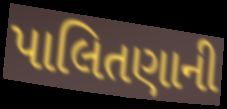
પાલિતણાની